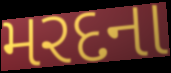
મરદના